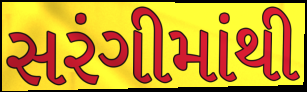
સરંગીમાંથી